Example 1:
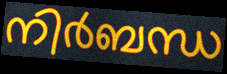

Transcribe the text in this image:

നിർബന്ധ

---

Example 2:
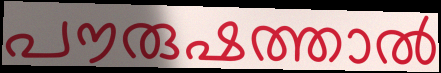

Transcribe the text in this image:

പൗരുഷത്താൽ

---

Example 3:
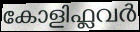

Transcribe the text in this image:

കോളിഫ്ലവർ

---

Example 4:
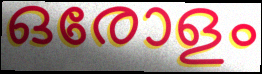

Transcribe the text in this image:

ഒരോളം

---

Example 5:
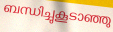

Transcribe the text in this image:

ബന്ധിച്ചുകൂടാഞ്ഞു